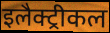
इलैक्ट्रीकल